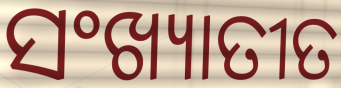
ସଂଖ୍ୟାତୀତ